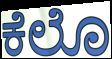
ಕೆಲೊ